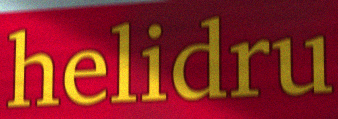
helidru